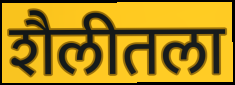
शैलीतला